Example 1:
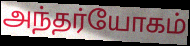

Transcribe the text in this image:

அந்தர்யோகம்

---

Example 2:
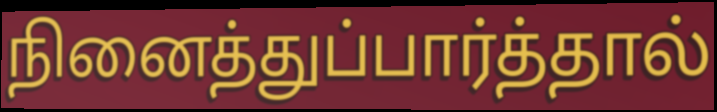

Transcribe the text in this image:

நினைத்துப்பார்த்தால்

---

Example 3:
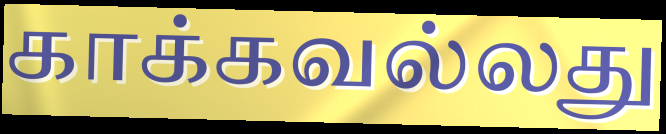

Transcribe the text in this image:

காக்கவல்லது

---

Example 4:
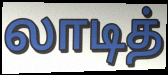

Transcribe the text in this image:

லாடித்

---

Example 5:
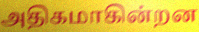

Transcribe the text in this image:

அதிகமாகின்றன